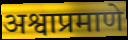
अश्वाप्रमाणे